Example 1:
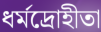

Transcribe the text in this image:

ধর্মদ্রোহীতা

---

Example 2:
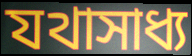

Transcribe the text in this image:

যথাসাধ্য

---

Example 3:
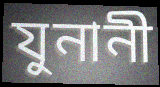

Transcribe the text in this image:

যুনানী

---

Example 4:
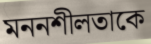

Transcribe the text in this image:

মননশীলতাকে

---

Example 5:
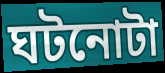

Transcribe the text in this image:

ঘটনোটা